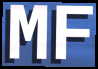
MF